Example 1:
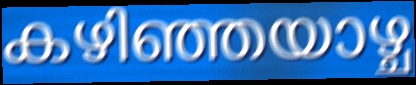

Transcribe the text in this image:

കഴിഞ്ഞയാഴ്ച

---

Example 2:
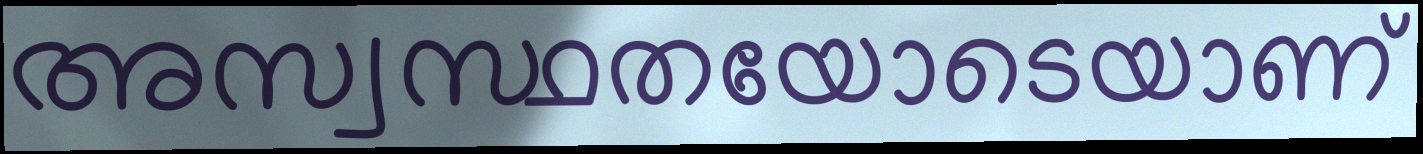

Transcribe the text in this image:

അസ്വസ്ഥതയോടെയാണ്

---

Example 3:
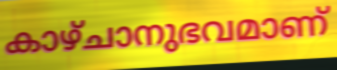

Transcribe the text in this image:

കാഴ്ചാനുഭവമാണ്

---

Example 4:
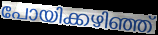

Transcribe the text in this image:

പോയിക്കഴിഞ്ഞ്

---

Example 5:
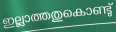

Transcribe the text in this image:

ഇല്ലാത്തതുകൊണ്ടു്